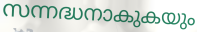
സന്നദ്ധനാകുകയും